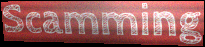
Scamming